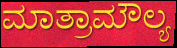
ಮಾತ್ರಾಮೌಲ್ಯ